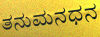
ತನುಮನಧನ